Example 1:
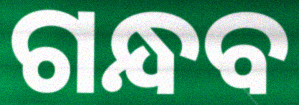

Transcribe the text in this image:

ଗନ୍ଧବ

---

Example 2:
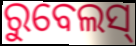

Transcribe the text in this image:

ରୁବେଲସ୍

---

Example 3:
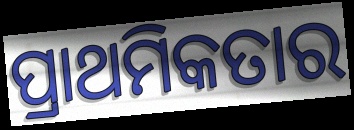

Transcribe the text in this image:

ପ୍ରାଥମିକତାର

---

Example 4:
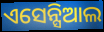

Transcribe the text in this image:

ଏସେନ୍ସିଆଲ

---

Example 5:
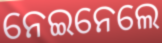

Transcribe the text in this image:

ନେଇନେଲେ